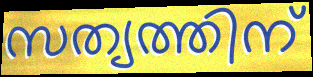
സത്യത്തിന്